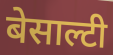
बेसाल्टी